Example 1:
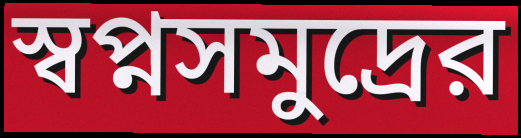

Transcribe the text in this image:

স্বপ্নসমুদ্রের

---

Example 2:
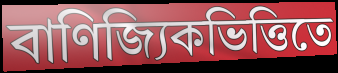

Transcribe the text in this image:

বাণিজ্যিকভিত্তিতে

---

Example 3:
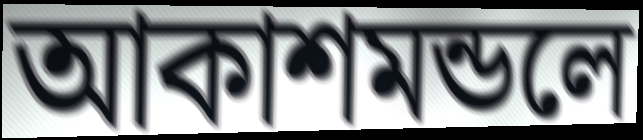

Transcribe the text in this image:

আকাশমন্ডলে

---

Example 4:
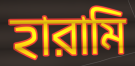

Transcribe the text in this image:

হারামি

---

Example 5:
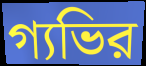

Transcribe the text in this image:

গ্যভির